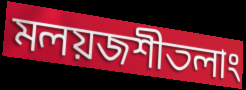
মলয়জশীতলাং